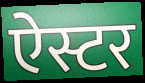
ऐस्टर